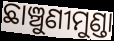
ଛାଞ୍ଚୁଣୀମୁଣ୍ଡା